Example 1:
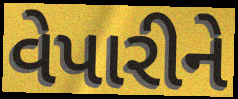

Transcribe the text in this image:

વેપારીને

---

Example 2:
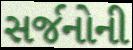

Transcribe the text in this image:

સર્જનોની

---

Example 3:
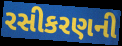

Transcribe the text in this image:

રસીકરણની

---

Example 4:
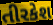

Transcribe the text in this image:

તીરકેશ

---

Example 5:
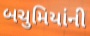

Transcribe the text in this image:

બચુમિયાંની